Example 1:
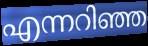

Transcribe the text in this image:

എന്നറിഞ്ഞ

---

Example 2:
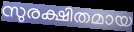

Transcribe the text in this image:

സുരക്ഷിതമായ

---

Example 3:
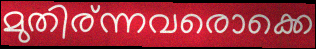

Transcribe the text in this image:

മുതിര്ന്നവരൊക്കെ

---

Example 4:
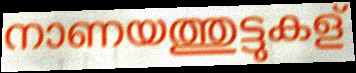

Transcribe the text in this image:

നാണയത്തുട്ടുകള്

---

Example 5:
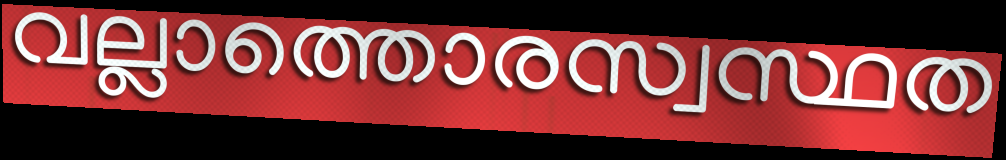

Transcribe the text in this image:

വല്ലാത്തൊരസ്വസ്ഥത